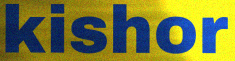
kishor